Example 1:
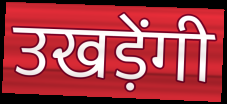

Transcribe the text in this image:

उखड़ेंगी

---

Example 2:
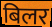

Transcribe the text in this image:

बिलर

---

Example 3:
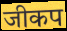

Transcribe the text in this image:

जीकप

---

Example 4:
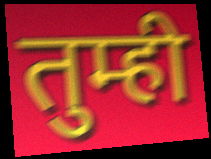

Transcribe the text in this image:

तुम्ही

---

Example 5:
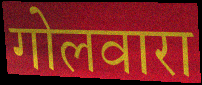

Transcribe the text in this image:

गोलवारा